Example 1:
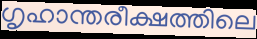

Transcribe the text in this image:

ഗൃഹാന്തരീക്ഷത്തിലെ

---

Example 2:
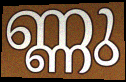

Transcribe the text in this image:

ണ്ണു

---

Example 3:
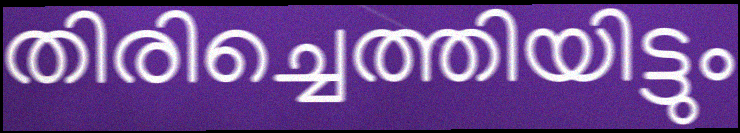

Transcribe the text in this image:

തിരിച്ചെത്തിയിട്ടും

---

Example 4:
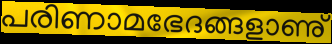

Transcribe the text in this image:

പരിണാമഭേദങ്ങളാണു്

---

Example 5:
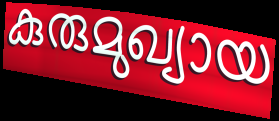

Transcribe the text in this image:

കുരുമുഖ്യായ